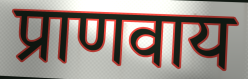
प्राणवाय